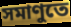
সমাণুতে